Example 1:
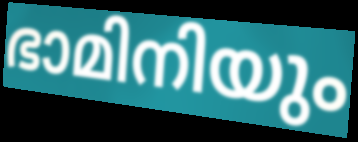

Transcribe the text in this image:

ഭാമിനിയും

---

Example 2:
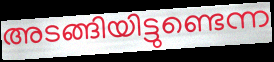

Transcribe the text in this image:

അടങ്ങിയിട്ടുണ്ടെന്ന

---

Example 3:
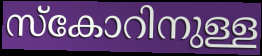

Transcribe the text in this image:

സ്കോറിനുള്ള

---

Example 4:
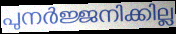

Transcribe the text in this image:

പുനർജ്ജനിക്കില്ല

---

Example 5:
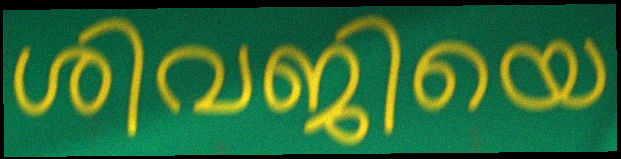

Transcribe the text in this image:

ശിവജിയെ